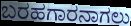
ಬರಹಗಾರನಾಗಲು